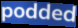
podded